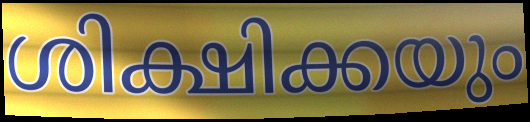
ശിക്ഷിക്കയും